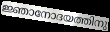
ജ്ഞാനോദയത്തിനു